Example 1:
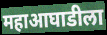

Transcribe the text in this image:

महाआघाडीला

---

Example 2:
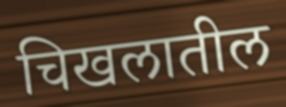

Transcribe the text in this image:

चिखलातील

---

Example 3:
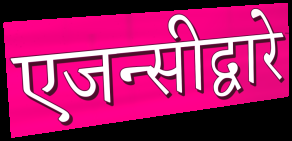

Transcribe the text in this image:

एजन्सीद्वारे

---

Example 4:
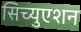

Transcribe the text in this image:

सिच्युएशन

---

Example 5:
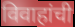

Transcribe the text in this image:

विवाहांची